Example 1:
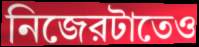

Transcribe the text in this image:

নিজেরটাতেও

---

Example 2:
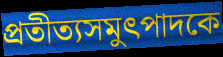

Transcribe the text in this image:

প্রতীত্যসমুৎপাদকে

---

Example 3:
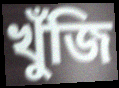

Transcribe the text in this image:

খুঁজি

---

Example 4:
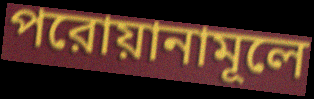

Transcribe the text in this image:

পরোয়ানামূলে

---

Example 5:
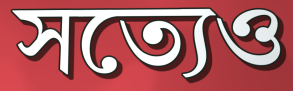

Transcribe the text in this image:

সত্যেও